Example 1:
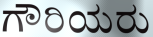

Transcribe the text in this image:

ಗೌರಿಯರು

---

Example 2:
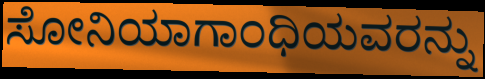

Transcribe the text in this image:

ಸೋನಿಯಾಗಾಂಧಿಯವರನ್ನು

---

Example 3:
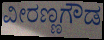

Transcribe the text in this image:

ವೀರಣ್ಣಗೌಡ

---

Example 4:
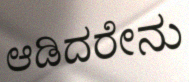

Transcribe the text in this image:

ಆಡಿದರೇನು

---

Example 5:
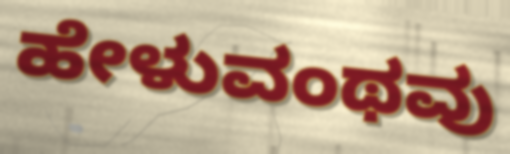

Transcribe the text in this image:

ಹೇಳುವಂಥವು